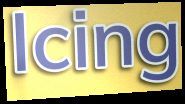
Icing